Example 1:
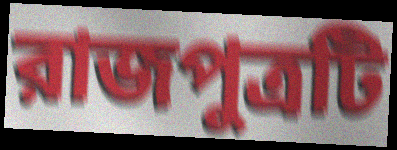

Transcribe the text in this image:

রাজপুত্রটি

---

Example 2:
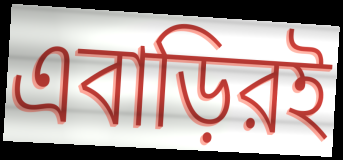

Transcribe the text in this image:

এবাড়িরই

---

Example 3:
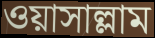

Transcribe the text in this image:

ওয়াসাল্লাম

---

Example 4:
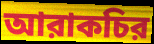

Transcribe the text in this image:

আরাকচির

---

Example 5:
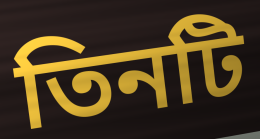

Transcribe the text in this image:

তিনটি